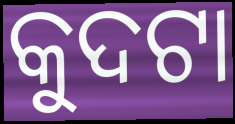
କୁଦଟା